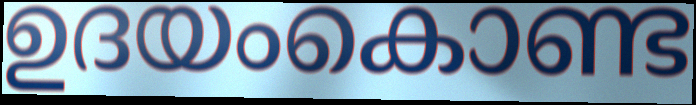
ഉദയംകൊണ്ട